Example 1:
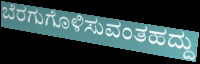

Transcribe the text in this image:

ಬೆರಗುಗೊಳಿಸುವಂತಹದ್ದು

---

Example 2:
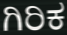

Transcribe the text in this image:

ಗಿರಿಕ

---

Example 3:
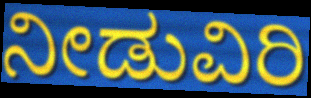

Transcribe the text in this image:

ನೀಡುವಿರಿ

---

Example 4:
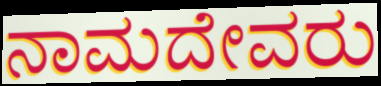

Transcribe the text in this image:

ನಾಮದೇವರು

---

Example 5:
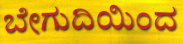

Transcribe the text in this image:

ಬೇಗುದಿಯಿಂದ